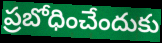
ప్రబోధించేందుకు